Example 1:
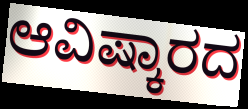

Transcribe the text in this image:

ಆವಿಷ್ಕಾರದ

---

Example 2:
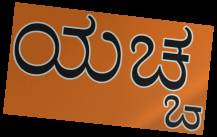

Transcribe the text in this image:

ಯಚ್ಚ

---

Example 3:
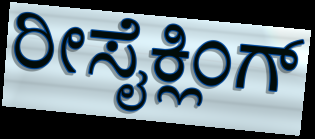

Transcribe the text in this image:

ರೀಸೈಕ್ಲಿಂಗ್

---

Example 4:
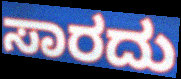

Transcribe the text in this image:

ಸಾರದು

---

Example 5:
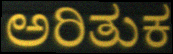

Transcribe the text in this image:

ಅರಿತುಕ